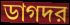
ডাগদর